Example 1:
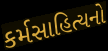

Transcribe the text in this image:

કર્મસાહિત્યનો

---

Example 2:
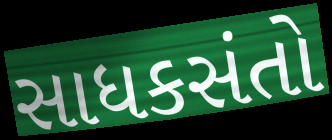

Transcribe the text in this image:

સાધકસંતો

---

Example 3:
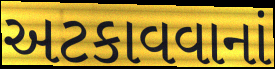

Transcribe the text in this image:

અટકાવવાનાં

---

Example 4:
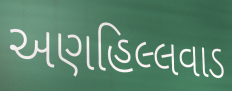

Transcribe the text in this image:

અણહિલ્લવાડ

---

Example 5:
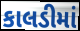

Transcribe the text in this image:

કાલડીમાં